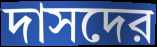
দাসদের